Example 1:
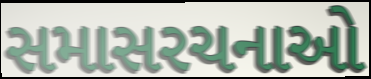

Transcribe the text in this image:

સમાસરચનાઓ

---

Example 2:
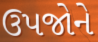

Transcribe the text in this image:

ઉપજોને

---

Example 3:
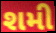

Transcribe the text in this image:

શમી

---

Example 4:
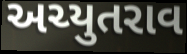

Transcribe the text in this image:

અચ્યુતરાવ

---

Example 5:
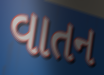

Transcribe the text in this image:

વાતન